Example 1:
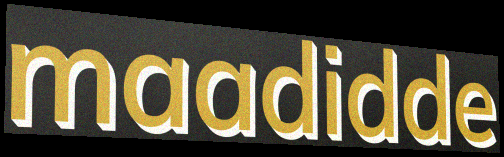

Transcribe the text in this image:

maadidde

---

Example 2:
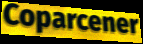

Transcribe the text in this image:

Coparcener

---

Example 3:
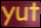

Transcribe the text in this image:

yut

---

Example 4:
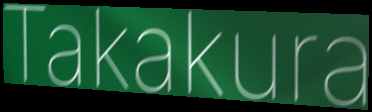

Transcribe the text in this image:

Takakura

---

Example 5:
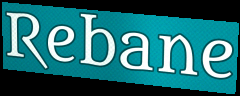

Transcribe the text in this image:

Rebane